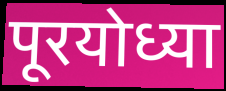
पूरयोध्या